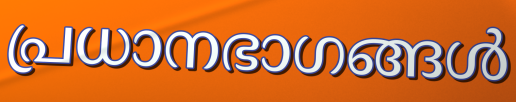
പ്രധാനഭാഗങ്ങൾ